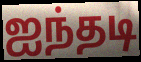
ஐந்தடி